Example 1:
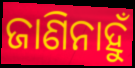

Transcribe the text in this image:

ଜାଣିନାହୁଁ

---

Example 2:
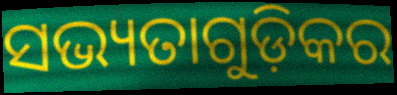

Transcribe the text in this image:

ସଭ୍ୟତାଗୁଡ଼ିକର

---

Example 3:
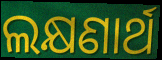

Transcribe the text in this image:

ଲକ୍ଷଣାର୍ଥ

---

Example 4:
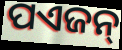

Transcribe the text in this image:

ପଏଜନ୍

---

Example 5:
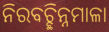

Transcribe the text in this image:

ନିରବଚ୍ଛିନ୍ନମାଳା